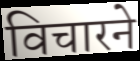
विचारने